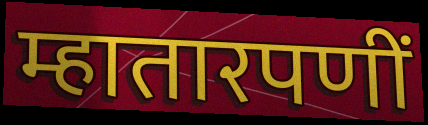
म्हातारपणीं